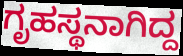
ಗೃಹಸ್ಥನಾಗಿದ್ದ